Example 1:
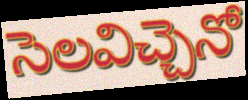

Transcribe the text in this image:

సెలవిచ్చెనో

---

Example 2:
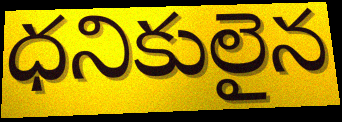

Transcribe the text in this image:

ధనికులైన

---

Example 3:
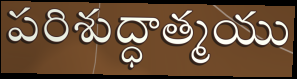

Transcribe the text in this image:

పరిశుద్ధాత్మయు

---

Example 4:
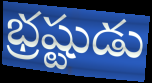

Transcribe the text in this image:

భ్రష్టుడు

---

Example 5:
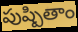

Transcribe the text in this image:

పుష్పితాం